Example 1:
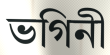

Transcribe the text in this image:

ভগিনী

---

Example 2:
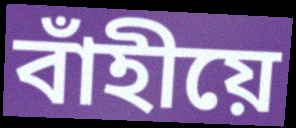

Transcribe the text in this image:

বাঁহীয়ে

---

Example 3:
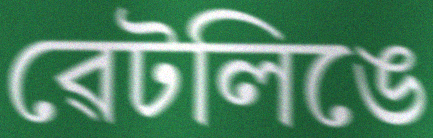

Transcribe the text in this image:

ৱেটলিঙে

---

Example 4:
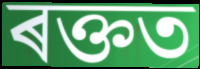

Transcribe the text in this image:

ৰক্তত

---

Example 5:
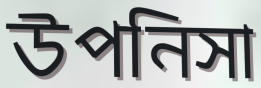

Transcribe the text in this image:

উপনিসা